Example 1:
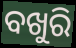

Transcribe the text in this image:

ବଖୁରି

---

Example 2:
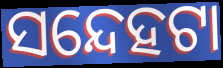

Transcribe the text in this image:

ସନ୍ଦେହଟା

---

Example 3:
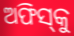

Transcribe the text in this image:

ଅଫିସ୍‌କୁ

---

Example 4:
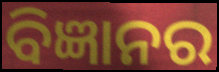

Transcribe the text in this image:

ବିଜ୍ଞାନର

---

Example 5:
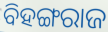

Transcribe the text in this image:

ବିହଙ୍ଗରାଜ